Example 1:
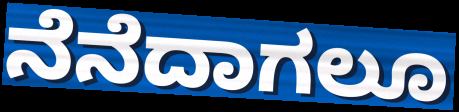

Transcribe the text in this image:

ನೆನೆದಾಗಲೂ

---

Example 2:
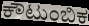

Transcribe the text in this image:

ಕೌಟುಂಬಿಕ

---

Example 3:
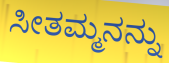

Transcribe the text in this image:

ಸೀತಮ್ಮನನ್ನು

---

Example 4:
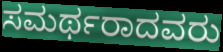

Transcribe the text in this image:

ಸಮರ್ಥರಾದವರು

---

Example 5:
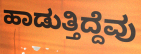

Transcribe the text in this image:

ಹಾಡುತ್ತಿದ್ದೆವು